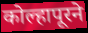
कोल्हापूरने